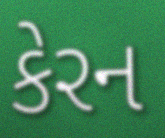
કેરન